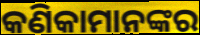
କଣିକାମାନଙ୍କର